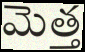
మెత్త